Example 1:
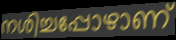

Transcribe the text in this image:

നശിച്ചപ്പോഴാണ്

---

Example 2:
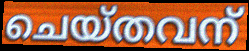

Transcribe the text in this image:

ചെയ്തവന്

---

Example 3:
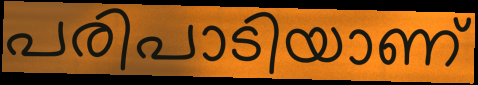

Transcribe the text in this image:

പരിപാടിയാണ്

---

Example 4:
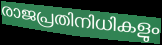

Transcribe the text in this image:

രാജപ്രതിനിധികളും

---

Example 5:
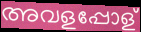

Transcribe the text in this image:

അവളപ്പോള്